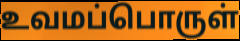
உவமப்பொருள்